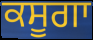
ਕਸੂਗਾ